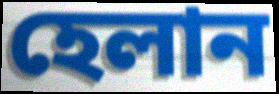
হেলান